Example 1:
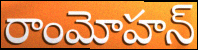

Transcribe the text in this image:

రాంమోహన్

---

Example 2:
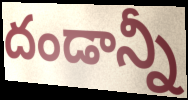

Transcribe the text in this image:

దండాన్నీ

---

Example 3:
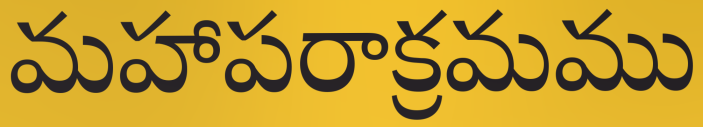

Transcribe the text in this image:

మహాపరాక్రమము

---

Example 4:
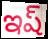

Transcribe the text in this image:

ఇష్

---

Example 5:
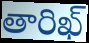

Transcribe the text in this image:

తారిఖ్